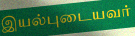
இயல்புடையவர்